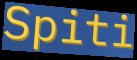
Spiti